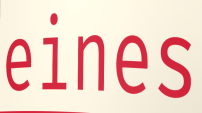
eines